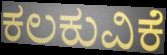
ಕಲಕುವಿಕೆ